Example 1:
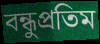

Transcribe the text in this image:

বন্ধুপ্রতিম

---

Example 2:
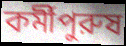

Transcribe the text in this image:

কর্মীপুরুষ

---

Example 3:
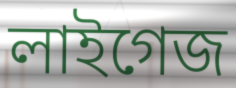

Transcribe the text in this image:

লাইগেজ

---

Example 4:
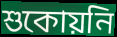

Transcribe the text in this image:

শুকোয়নি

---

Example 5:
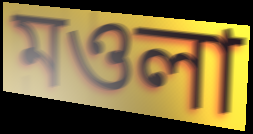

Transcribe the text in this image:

মওলা